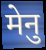
मेनु